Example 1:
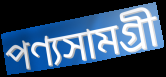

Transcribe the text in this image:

পণ্যসামগ্রী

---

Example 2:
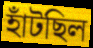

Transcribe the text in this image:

হাঁটছিল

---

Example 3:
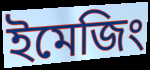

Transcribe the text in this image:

ইমেজিং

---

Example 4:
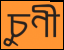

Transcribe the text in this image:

চুণী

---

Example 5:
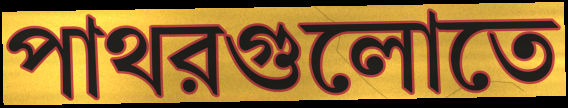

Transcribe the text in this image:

পাথরগুলোতে